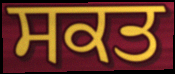
ਸਕਤ